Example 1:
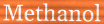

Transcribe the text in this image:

Methanol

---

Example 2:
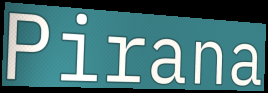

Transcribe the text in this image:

Pirana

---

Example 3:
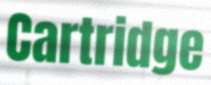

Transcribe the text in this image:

Cartridge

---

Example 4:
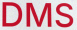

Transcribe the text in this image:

DMS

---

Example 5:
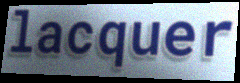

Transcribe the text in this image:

lacquer